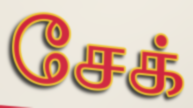
சேக்